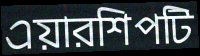
এয়ারশিপটি